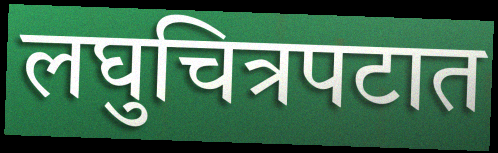
लघुचित्रपटात